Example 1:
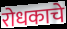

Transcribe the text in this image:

रोधकाचे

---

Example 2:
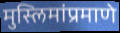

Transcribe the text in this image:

मुस्लिमांप्रमाणे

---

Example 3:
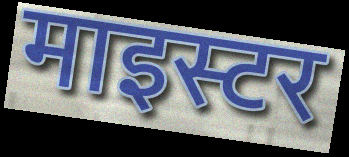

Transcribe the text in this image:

माइस्टर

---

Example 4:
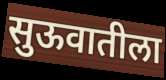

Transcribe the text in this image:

सुऊवातीला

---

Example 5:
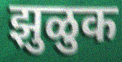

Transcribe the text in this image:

झुळुक